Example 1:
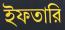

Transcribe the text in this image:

ইফতারি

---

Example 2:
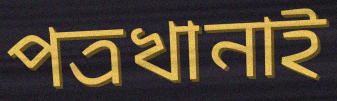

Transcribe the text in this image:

পত্রখানাই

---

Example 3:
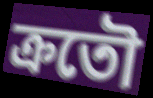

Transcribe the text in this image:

ক্রতৌ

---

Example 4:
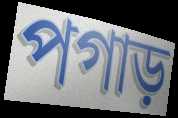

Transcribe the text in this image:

পগাড়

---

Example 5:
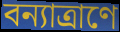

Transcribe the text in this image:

বন্যাত্রাণে